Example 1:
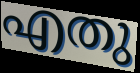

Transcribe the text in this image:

എതു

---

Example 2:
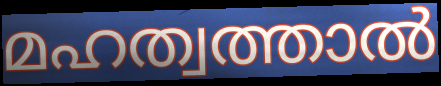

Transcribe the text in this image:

മഹത്വത്താൽ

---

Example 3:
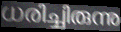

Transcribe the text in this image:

ധരിച്ചിരുന്നു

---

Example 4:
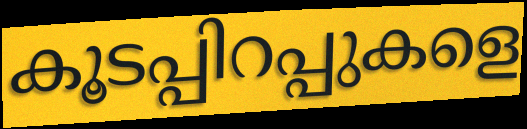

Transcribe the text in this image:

കൂടപ്പിറപ്പുകളെ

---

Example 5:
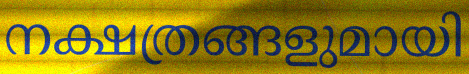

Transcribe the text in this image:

നക്ഷത്രങ്ങളുമായി